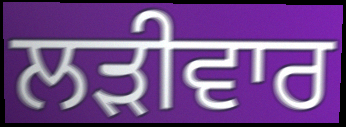
ਲੜੀਵਾਰ